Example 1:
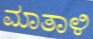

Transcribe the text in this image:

ಮಾತಾಳಿ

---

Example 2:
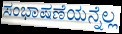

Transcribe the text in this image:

ಸಂಭಾಷಣೆಯನ್ನೆಲ್ಲ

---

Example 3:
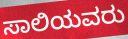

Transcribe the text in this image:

ಸಾಲಿಯವರು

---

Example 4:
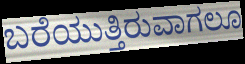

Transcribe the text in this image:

ಬರೆಯುತ್ತಿರುವಾಗಲೂ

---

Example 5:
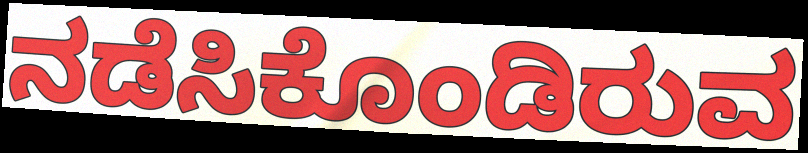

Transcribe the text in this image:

ನಡೆಸಿಕೊಂಡಿರುವ